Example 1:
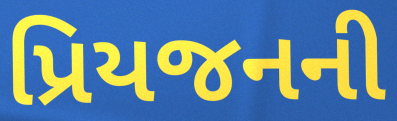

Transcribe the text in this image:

પ્રિયજનની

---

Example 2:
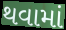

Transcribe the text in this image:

થવામાં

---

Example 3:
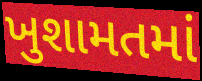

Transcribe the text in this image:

ખુશામતમાં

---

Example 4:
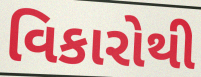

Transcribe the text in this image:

વિકારોથી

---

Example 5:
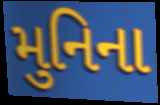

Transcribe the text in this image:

મુનિના